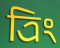
ত্রিং